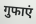
गुफाएं